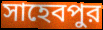
সাহেবপুর